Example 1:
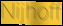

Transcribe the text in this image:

Nijhoff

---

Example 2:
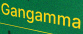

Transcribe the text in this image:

Gangamma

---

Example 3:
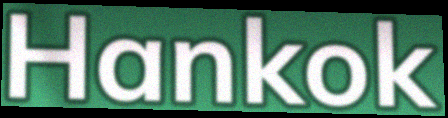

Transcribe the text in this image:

Hankok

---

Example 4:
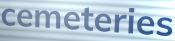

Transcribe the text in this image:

cemeteries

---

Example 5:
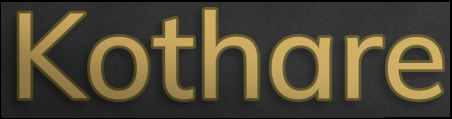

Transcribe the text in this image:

Kothare